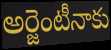
అర్జెంటీనాకు